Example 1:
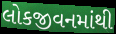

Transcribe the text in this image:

લોકજીવનમાંથી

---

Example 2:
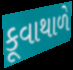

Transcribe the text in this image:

કૂવાથાળે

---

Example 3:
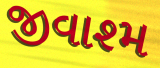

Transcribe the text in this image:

જીવાશ્મ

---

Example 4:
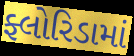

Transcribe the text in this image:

ફ્લોરિડામાં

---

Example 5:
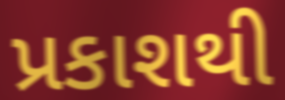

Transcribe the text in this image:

પ્રકાશથી